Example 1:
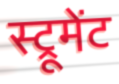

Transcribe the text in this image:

स्ट्रूमेंट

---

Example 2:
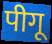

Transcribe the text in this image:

पीगू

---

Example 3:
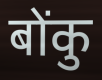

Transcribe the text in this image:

बोंकु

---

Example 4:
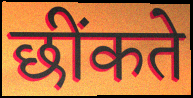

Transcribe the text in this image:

छींकते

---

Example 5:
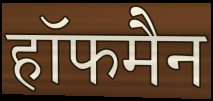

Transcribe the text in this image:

हॉफमैन